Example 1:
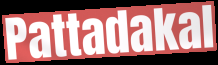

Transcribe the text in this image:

Pattadakal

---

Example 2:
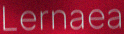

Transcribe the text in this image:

Lernaea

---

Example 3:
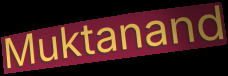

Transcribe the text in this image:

Muktanand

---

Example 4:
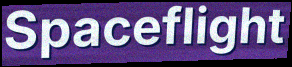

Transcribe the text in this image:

Spaceflight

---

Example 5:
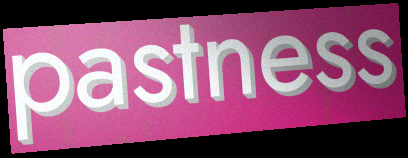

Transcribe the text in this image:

pastness